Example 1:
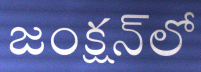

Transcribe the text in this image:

జంక్షన్‌లో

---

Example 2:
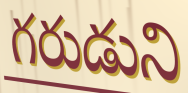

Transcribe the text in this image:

గరుడుని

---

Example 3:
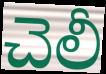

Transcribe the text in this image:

చెలీ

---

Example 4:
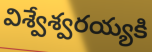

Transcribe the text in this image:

విశ్వేశ్వరయ్యకి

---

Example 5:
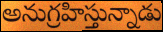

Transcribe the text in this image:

అనుగ్రహిస్తున్నాడు